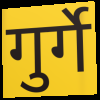
गुर्गे